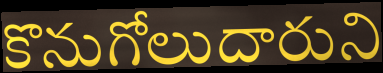
కొనుగోలుదారుని